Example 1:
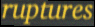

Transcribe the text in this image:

ruptures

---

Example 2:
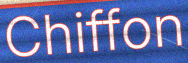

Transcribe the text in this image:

Chiffon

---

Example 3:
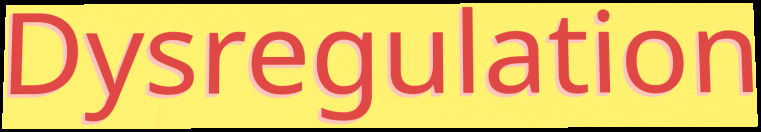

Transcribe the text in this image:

Dysregulation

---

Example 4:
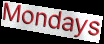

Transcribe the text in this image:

Mondays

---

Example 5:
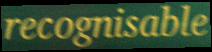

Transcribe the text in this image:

recognisable